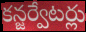
కన్జర్వేటర్లు